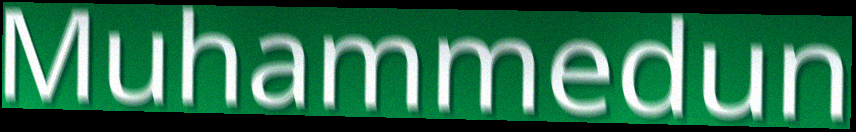
Muhammedun